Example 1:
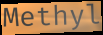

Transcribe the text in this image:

Methyl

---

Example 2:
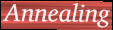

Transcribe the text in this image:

Annealing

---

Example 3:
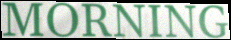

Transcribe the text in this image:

MORNING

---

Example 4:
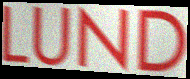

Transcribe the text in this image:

LUND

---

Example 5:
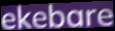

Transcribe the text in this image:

ekebare